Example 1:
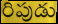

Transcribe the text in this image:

రిపుడు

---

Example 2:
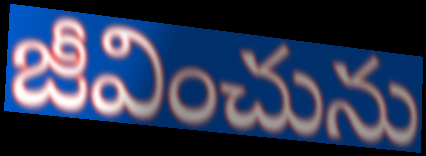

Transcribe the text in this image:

జీవించును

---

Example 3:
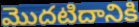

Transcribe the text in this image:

మొదటిదానికి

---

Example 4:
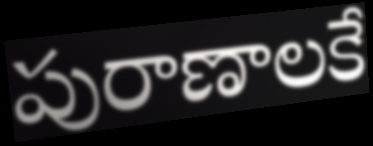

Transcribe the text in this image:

పురాణాలకే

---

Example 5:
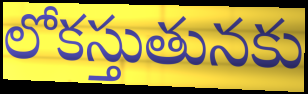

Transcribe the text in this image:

లోకస్తుతునకు